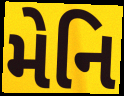
મેનિ